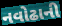
નવોઢાની